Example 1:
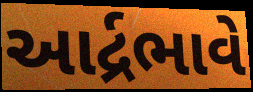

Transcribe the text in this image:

આર્દ્રભાવે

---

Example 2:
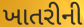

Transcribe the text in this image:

ખાતરીની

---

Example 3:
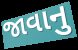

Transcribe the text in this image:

જાવાનુ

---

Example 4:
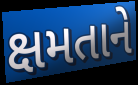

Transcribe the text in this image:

ક્ષમતાને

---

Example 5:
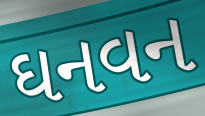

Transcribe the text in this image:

ઘનવન